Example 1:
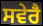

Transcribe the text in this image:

ਸਵੇਰੈ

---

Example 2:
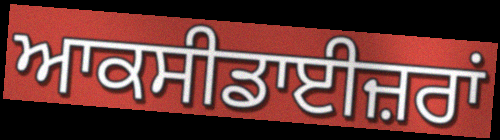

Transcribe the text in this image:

ਆਕਸੀਡਾਈਜ਼ਰਾਂ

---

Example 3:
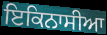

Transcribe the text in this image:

ਇਕਿਨਾਸੀਆ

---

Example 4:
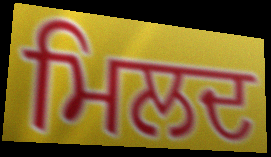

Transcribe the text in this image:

ਮਿਲਦ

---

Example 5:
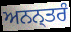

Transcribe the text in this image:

ਅਨਨ੍ਤਰੰ